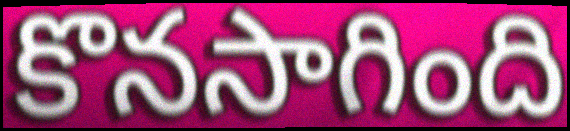
కొనసాగింది